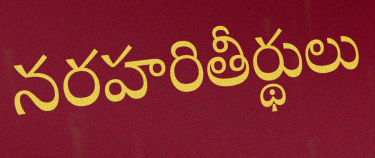
నరహరితీర్థులు